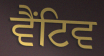
ਵੈਂਟਿਵ